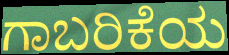
ಗಾಬರಿಕೆಯ